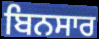
ਬਿਨਸਾਰ